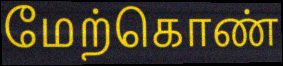
மேற்கொண்